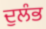
ਦੁਲੰਭ